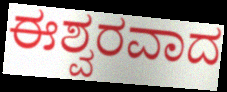
ಈಶ್ವರವಾದ